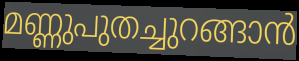
മണ്ണുപുതച്ചുറങ്ങാൻ